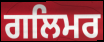
ਗਲਿਮਰ